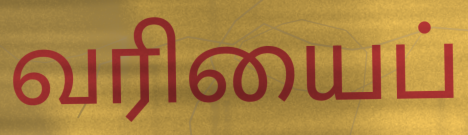
வரியைப்